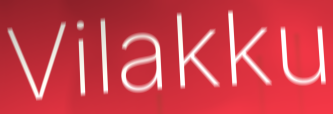
Vilakku